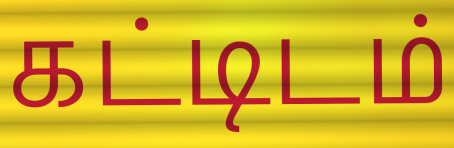
கட்டிடம்